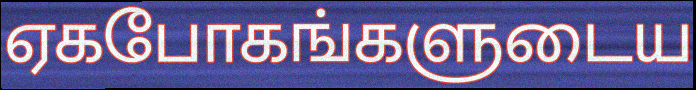
ஏகபோகங்களுடைய